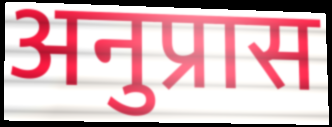
अनुप्रास